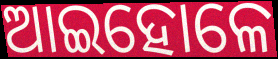
ଆଇହୋଳେ